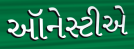
ઑનેસ્ટીએ